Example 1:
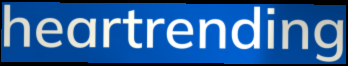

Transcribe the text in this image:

heartrending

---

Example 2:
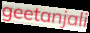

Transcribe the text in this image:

geetanjali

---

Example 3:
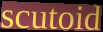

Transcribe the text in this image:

scutoid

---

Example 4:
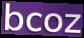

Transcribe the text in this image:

bcoz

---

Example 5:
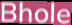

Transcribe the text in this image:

Bhole